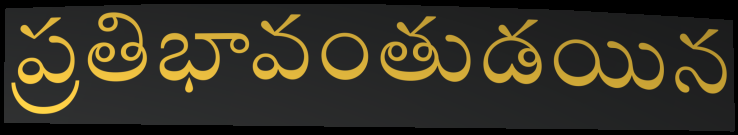
ప్రతిభావంతుడయిన